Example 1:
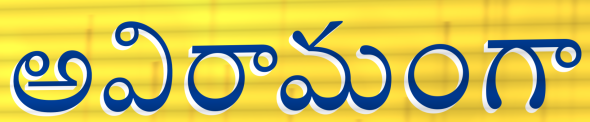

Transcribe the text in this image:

అవిరామంగా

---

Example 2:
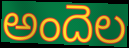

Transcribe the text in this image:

అందెల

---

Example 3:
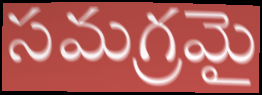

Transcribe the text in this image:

సమగ్రమై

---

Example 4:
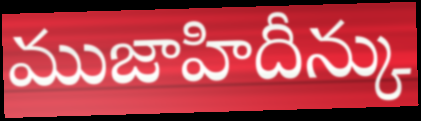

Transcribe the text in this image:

ముజాహిదీన్కు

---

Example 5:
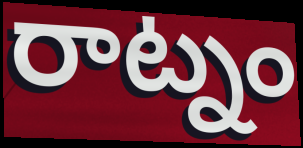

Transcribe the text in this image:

రాట్నం